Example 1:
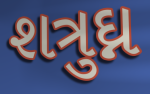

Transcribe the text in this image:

શત્રુઘ્ન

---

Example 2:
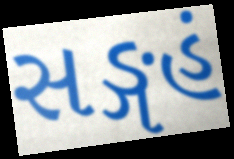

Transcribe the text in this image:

સઙ્ગહં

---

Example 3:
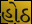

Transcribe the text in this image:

હોઠ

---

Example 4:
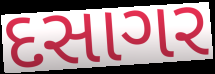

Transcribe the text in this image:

દસાગર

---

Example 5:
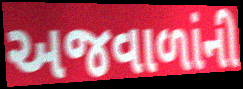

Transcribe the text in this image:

અજવાળાંની